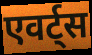
एवर्ट्स